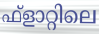
ഫ്ളാറ്റിലെ